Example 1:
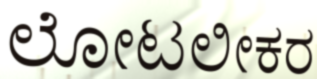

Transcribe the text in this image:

ಲೋಟಲೀಕರ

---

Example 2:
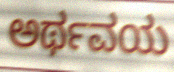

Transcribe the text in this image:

ಅರ್ಥವಯ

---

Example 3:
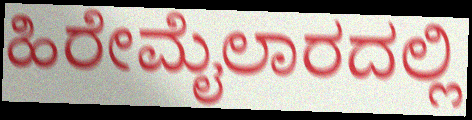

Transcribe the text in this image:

ಹಿರೇಮೈಲಾರದಲ್ಲಿ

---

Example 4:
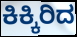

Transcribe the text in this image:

ಕಿಕ್ಕಿರಿದ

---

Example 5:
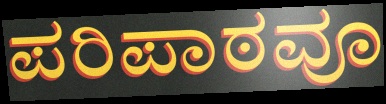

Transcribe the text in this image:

ಪರಿಪಾಠವೂ